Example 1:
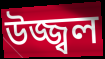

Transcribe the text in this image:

উজ্জ্বল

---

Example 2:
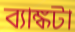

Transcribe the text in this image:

ব্যাঙ্কটা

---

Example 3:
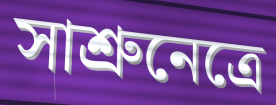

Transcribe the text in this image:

সাশ্রুনেত্রে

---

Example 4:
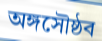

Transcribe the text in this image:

অঙ্গসৌষ্ঠব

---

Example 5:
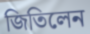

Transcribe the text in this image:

জিতিলেন